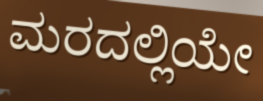
ಮರದಲ್ಲಿಯೇ